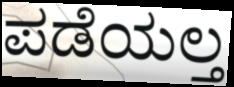
ಪಡೆಯಲ್ತ